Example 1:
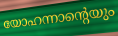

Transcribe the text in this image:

യോഹന്നാന്റെയും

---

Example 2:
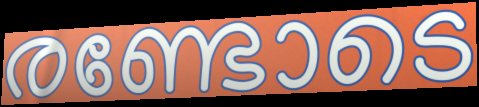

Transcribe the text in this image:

രണ്ടോടെ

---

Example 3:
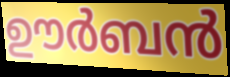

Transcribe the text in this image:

ഊർബൻ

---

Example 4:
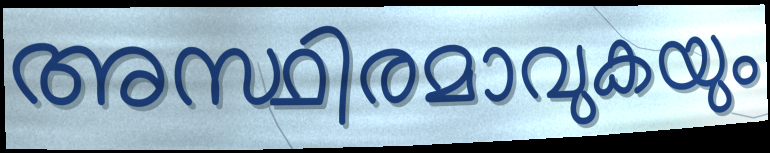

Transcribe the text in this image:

അസ്ഥിരമാവുകയും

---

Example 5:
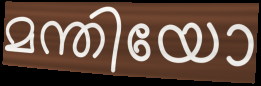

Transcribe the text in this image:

മന്തിയോ